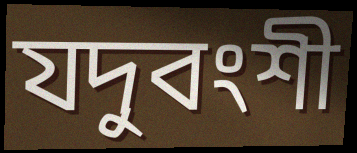
যদুবংশী